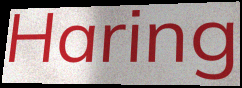
Haring